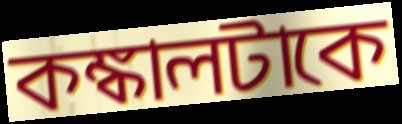
কঙ্কালটাকে